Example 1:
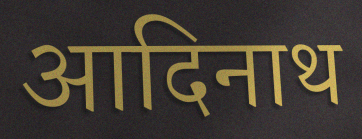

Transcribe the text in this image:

आदिनाथ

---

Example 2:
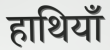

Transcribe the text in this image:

हाथियाँ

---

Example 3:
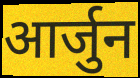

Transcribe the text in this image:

आर्जुन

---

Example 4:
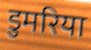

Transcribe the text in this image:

डुमरिया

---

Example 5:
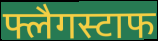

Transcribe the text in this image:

फ्लैगस्टाफ